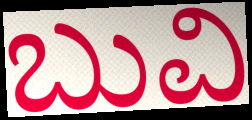
ಬುವಿ